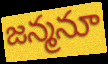
జన్మనూ